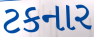
ટકનાર